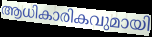
ആധികാരികവുമായി